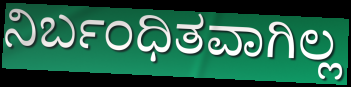
ನಿರ್ಬಂಧಿತವಾಗಿಲ್ಲ